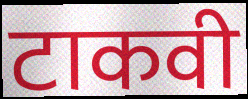
टाकवी